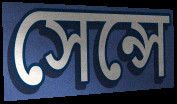
সেন্সে